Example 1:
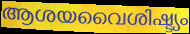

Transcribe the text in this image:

ആശയവൈശിഷ്ട്യം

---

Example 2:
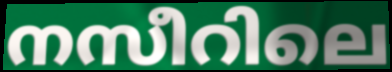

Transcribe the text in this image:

നസീറിലെ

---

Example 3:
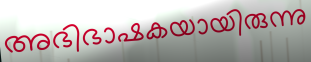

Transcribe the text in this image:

അഭിഭാഷകയായിരുന്നു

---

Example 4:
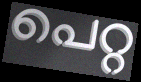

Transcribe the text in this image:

പെറ്റ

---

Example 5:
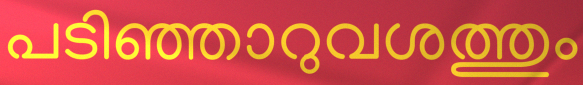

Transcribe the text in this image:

പടിഞ്ഞാറുവശത്തും